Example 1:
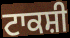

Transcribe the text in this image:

ਟਾਕਸ਼ੀ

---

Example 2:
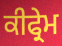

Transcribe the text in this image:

ਕੀਫ੍ਰੇਮ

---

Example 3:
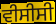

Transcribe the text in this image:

ਵੀਸੀਸੀ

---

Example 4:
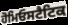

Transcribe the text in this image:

ਹੋਮਿਓਸਟੈਟਿਕ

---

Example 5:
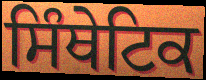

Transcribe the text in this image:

ਸਿੰਥੇਟਿਕ